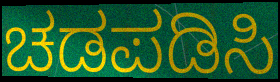
ಚಡಪಡಿಸಿ